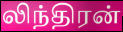
லிந்திரன்